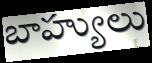
బాహ్యులు